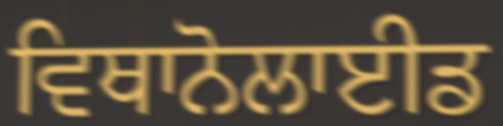
ਵਿਥਾਨੋਲਾਈਡ